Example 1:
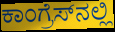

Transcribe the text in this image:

ಕಾಂಗ್ರೆಸ್‍ನಲ್ಲಿ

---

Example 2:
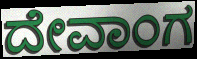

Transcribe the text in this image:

ದೇವಾಂಗ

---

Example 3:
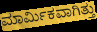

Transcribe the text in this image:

ಮಾರ್ಮಿಕವಾಗಿತ್ತು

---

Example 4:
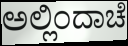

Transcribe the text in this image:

ಅಲ್ಲಿಂದಾಚೆ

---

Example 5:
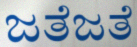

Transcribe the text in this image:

ಜತೆಜತೆ